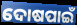
ଦୋଷପାଇଁ